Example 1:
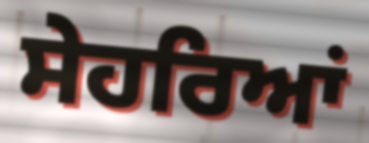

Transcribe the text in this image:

ਸੇਹਰਿਆਂ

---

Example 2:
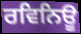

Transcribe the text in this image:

ਰਵਿਨਿਊ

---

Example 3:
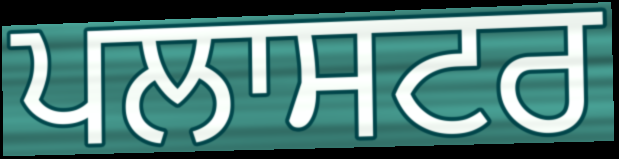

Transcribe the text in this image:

ਪਲਾਸਟਰ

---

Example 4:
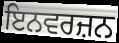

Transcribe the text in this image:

ਇਨਵਰਜ਼ਨ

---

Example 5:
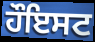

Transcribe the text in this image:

ਹੌਇਸਟ